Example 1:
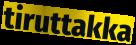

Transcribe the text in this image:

tiruttakka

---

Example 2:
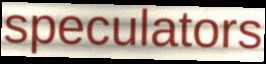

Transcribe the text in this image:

speculators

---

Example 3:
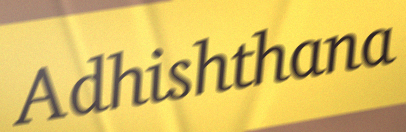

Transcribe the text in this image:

Adhishthana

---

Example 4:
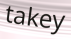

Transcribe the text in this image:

takey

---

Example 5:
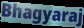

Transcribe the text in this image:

Bhagyaraj